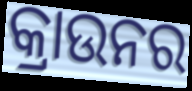
କ୍ରାଉନର